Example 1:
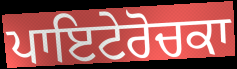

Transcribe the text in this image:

ਪਾਇਟੇਰੋਚਕਾ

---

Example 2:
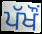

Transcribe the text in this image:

ਪੱਖੌਂ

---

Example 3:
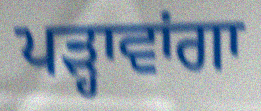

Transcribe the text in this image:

ਪੜ੍ਹਾਵਾਂਗਾ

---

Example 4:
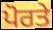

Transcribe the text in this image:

ਪੋਰਤੇ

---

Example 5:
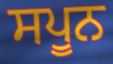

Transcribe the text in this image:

ਸਪੂਨ